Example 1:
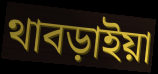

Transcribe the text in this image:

থাবড়াইয়া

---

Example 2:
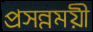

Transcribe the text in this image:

প্রসন্নময়ী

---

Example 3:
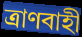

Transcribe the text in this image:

ত্রাণবাহী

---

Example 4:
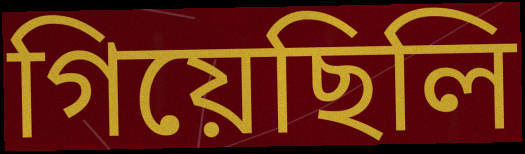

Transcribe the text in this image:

গিয়েছিলি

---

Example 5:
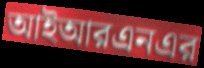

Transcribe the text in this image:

আইআরএনএর